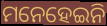
ମନେହେଇନି